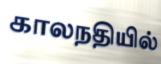
காலநதியில்